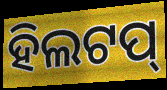
ହିଲଟପ୍